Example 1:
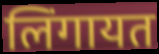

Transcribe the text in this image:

लिंगायत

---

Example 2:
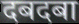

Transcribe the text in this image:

दबदबा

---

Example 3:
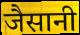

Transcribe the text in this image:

जैसानी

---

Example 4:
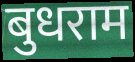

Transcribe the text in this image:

बुधराम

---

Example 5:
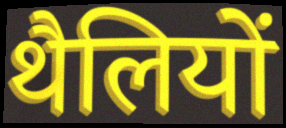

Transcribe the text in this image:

थैलियों